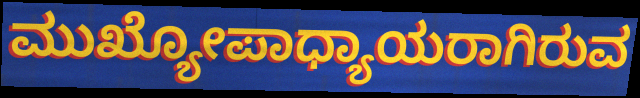
ಮುಖ್ಯೋಪಾಧ್ಯಾಯರಾಗಿರುವ